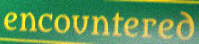
encountered